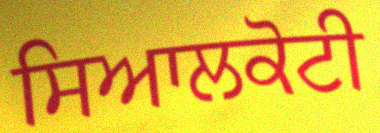
ਸਿਆਲਕੋਟੀ